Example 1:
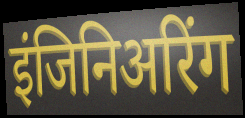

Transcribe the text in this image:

इंजिनिअरिंग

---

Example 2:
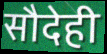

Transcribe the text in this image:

सौदेही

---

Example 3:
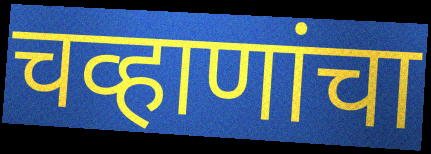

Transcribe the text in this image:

चव्हाणांचा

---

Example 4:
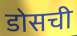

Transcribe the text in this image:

डोसची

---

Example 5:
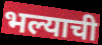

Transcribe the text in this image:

भल्याची